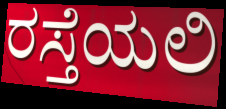
ರಸ್ತೆಯಲಿ